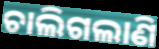
ଚାଲିଗଲାଣି